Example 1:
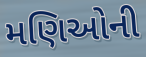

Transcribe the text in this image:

મણિઓની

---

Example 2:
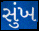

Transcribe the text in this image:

સુંખ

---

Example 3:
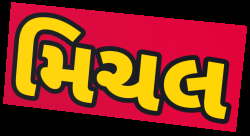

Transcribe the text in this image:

મિચલ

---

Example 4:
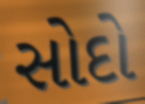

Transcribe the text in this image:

સોદો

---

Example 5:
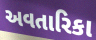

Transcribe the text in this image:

અવતારિકા